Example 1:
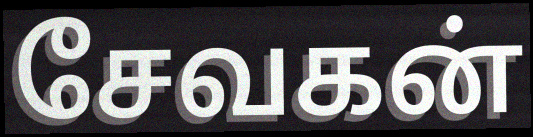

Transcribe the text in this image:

சேவகன்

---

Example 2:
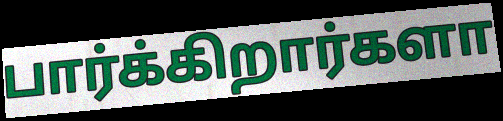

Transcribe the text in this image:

பார்க்கிறார்களா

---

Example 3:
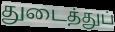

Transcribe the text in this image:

துடைத்துப்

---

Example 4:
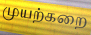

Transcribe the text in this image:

முயற்கறை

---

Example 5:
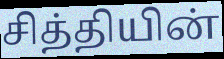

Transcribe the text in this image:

சித்தியின்